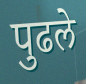
पुढले